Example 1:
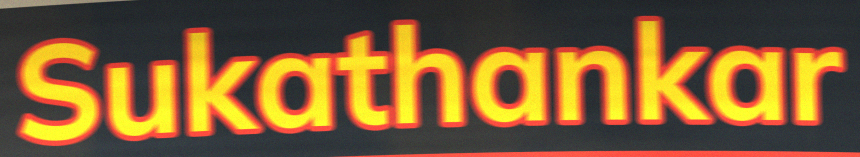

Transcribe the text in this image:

Sukathankar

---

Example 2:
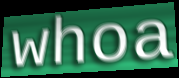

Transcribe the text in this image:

whoa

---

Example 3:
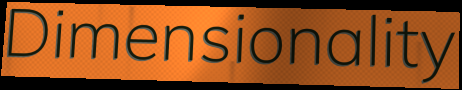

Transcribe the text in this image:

Dimensionality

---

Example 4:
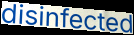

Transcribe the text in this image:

disinfected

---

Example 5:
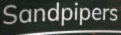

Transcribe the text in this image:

Sandpipers